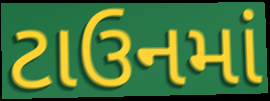
ટાઉનમાં